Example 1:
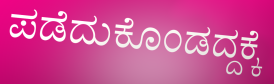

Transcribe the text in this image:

ಪಡೆದುಕೊಂಡದ್ದಕ್ಕೆ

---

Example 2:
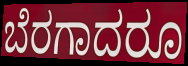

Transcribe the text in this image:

ಬೆರಗಾದರೂ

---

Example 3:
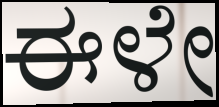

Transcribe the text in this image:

ಈಳೇ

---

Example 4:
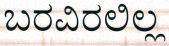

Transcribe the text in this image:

ಬರವಿರಲಿಲ್ಲ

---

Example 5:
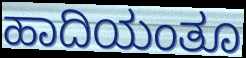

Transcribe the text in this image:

ಹಾದಿಯಂತೂ